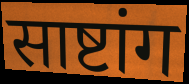
साष्टांग